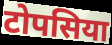
टोपसिया